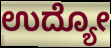
ಉದ್ಯೋ